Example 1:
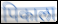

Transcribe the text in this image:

पिकाला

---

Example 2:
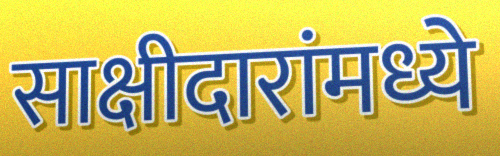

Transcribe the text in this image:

साक्षीदारांमध्ये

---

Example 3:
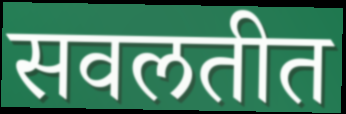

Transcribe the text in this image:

सवलतीत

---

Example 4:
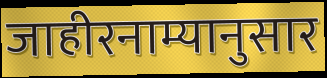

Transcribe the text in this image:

जाहीरनाम्यानुसार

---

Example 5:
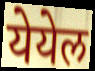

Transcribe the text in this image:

येयेल